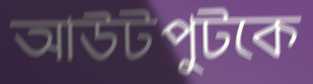
আউটপুটকে